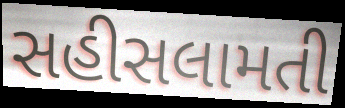
સહીસલામતી